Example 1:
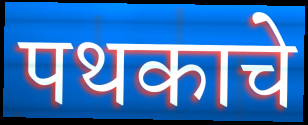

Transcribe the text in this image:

पथकाचे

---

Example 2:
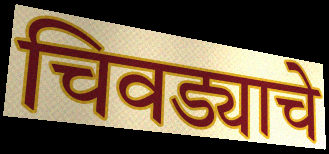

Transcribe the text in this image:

चिवड्याचे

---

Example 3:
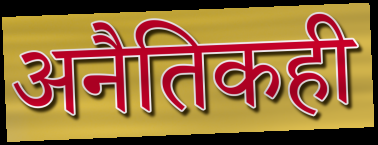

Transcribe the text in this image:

अनैतिकही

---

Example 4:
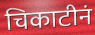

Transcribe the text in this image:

चिकाटीनं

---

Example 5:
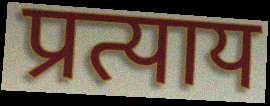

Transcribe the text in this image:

प्रत्याय